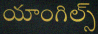
యాంగిల్స్